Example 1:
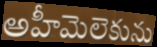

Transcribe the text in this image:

అహీమెలెకును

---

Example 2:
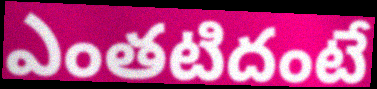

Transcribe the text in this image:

ఎంతటిదంటే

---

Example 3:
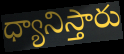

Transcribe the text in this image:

ధ్యానిస్తారు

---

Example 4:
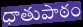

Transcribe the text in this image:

ధాతుపాఠం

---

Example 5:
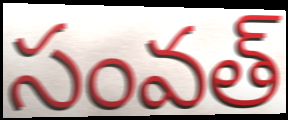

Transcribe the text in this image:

సంవత్